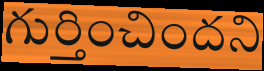
గుర్తించిందని